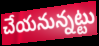
చేయనున్నట్టు